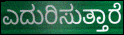
ಎದುರಿಸುತ್ತಾರೆ